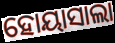
ହୋୟାସାଲା